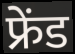
फ्रेंड